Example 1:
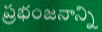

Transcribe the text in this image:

ప్రభంజనాన్ని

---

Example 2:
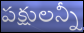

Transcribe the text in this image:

పక్షులన్నీ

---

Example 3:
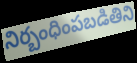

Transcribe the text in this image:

నిర్బంధింపబడితిని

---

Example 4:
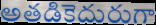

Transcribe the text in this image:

అతడికెదురుగా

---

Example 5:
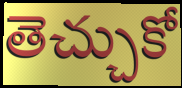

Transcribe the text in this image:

తెచ్చుకో